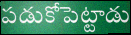
పడుకోపెట్టాడు